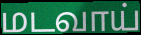
மடவாய்